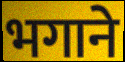
भगाने